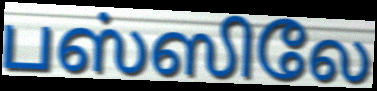
பஸ்ஸிலே